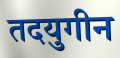
तदयुगीन